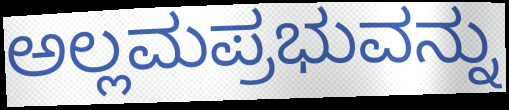
ಅಲ್ಲಮಪ್ರಭುವನ್ನು